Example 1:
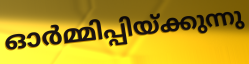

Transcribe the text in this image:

ഓർമ്മിപ്പിയ്ക്കുന്നു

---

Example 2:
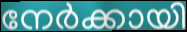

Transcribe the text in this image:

നേർക്കായി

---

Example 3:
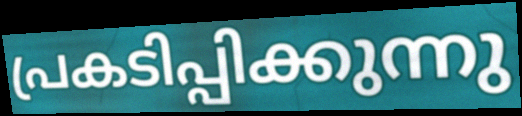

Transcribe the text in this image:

പ്രകടിപ്പിക്കുന്നു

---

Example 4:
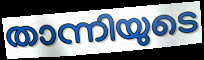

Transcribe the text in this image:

താന്നിയുടെ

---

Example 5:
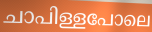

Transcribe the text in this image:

ചാപിള്ളപോലെ